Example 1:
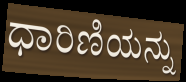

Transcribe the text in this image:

ಧಾರಿಣಿಯನ್ನು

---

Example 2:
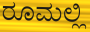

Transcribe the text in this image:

ರೂಮಲ್ಲಿ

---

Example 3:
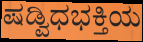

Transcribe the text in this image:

ಷಡ್ವಿಧಭಕ್ತಿಯ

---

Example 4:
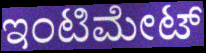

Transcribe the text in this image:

ಇಂಟಿಮೇಟ್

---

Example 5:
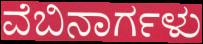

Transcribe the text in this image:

ವೆಬಿನಾರ್ಗಳು